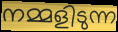
നമ്മളിടുന്ന